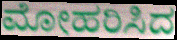
ಮೋಹರಿಸಿದ